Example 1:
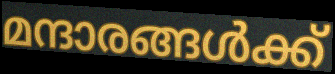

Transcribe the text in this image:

മന്ദാരങ്ങൾക്ക്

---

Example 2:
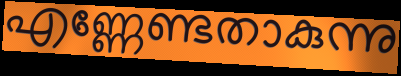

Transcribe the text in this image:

എണ്ണേണ്ടതാകുന്നു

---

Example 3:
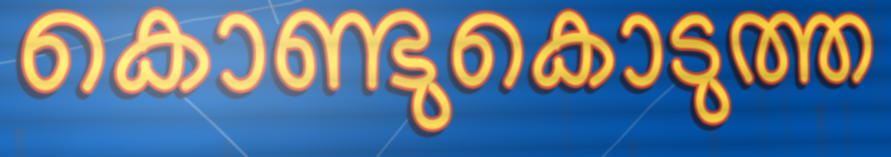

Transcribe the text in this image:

കൊണ്ടുകൊടുത്ത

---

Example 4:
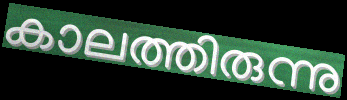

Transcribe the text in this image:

കാലത്തിരുന്നു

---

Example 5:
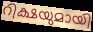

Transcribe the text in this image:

റിക്ഷയുമായി